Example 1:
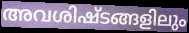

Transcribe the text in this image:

അവശിഷ്ടങ്ങളിലും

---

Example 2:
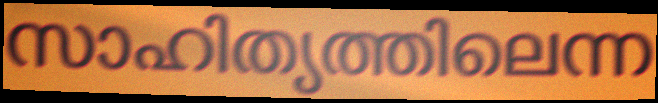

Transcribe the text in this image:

സാഹിത്യത്തിലെന്ന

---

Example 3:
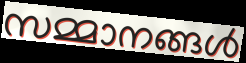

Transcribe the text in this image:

സമ്മാനങ്ങൾ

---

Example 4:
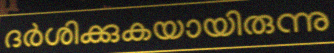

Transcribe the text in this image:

ദർശിക്കുകയായിരുന്നു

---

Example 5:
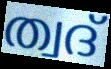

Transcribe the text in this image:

ത്വദ്